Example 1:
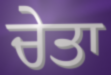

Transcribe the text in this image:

ਚੇਤਾ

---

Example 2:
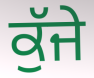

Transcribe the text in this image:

ਕੁੱਜੇ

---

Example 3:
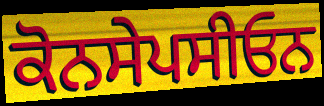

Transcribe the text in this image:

ਕੋਨਸੇਪਸੀਓਨ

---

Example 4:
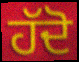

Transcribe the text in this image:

ਹੱਦੋ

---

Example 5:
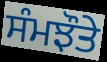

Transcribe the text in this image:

ਸੰਮਝੌਤੇ